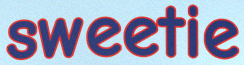
sweetie